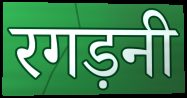
रगड़नी